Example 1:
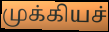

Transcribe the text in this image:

முக்கியச்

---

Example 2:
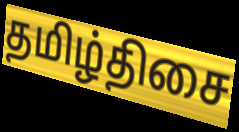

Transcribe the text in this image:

தமிழ்திசை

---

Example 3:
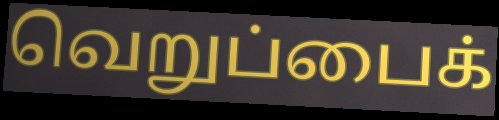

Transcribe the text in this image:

வெறுப்பைக்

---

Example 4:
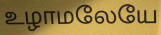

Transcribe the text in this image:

உழாமலேயே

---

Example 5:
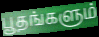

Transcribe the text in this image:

பூதங்களும்